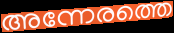
അന്നേരത്തെ